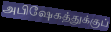
அபிஷேகத்துக்குப்